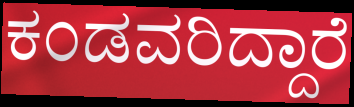
ಕಂಡವರಿದ್ದಾರೆ